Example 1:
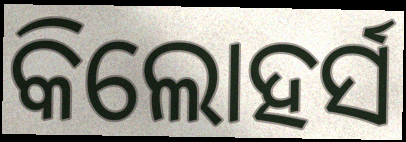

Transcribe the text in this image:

କିଲୋହର୍ସ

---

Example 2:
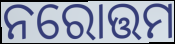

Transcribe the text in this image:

ନରୋତ୍ତମ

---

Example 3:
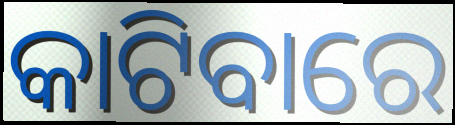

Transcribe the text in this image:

କାଟିବାରେ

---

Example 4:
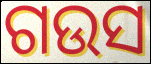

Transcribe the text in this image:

ଗଉସ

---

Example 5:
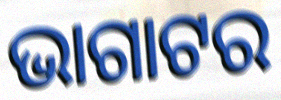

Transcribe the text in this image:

ଭାଗାଟର